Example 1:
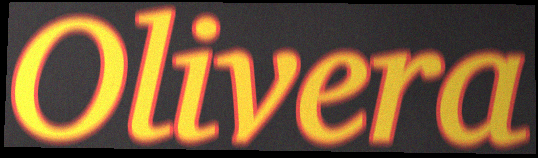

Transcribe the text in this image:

Olivera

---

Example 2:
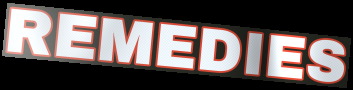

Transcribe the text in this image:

REMEDIES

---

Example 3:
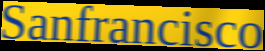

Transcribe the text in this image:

Sanfrancisco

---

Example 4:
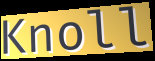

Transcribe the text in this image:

Knoll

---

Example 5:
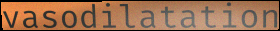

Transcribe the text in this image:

vasodilatation